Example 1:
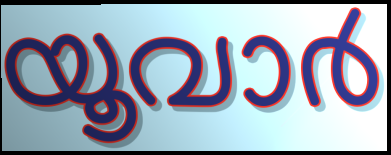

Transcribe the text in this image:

യൂവാർ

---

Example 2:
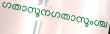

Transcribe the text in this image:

ഗതാസൂനഗതാസൂംശ്ച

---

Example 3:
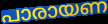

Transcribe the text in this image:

പാരായണ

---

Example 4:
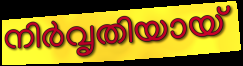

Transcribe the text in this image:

നിർവൃതിയായ്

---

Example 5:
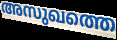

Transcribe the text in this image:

അസുഖത്തെ